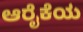
ಆರೈಕೆಯ